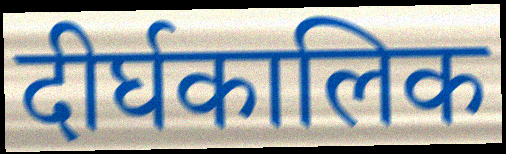
दीर्घकालिक